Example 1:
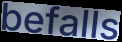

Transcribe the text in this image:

befalls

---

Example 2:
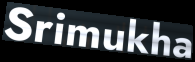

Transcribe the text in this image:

Srimukha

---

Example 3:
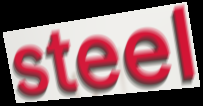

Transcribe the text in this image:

steel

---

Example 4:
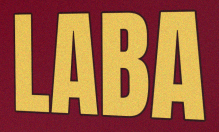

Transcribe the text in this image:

LABA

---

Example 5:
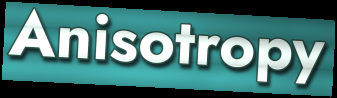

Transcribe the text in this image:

Anisotropy